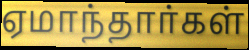
ஏமாந்தார்கள்